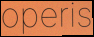
operis